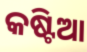
କଷ୍ଟିଆ